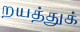
றயத்துக்